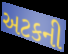
અટકની